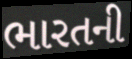
ભારતની